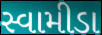
સ્વામીડા